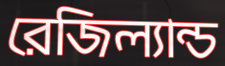
রেজিল্যান্ড